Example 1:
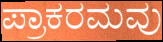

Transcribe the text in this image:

ಪ್ರಾಕರಮವು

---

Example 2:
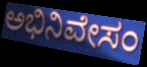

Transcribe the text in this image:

ಅಭಿನಿವೇಸಂ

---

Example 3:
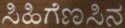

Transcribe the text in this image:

ಸಿಹಿಗೆಣಸಿನ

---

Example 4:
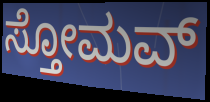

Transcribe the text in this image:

ಸ್ತೋಮವ್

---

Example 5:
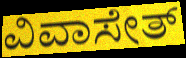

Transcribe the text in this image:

ವಿವಾಸೇತ್